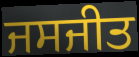
ਜਸਜੀਤ